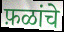
फ़ळांचे